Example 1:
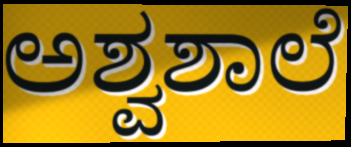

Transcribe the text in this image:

ಅಶ್ವಶಾಲೆ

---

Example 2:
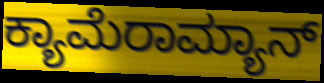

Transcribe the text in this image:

ಕ್ಯಾಮೆರಾಮ್ಯಾನ್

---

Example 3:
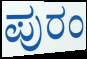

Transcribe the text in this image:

ಪುರಂ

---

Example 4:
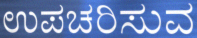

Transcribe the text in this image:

ಉಪಚರಿಸುವ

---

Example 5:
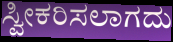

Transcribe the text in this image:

ಸ್ವೀಕರಿಸಲಾಗದು